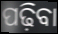
ପଢ଼ିବା